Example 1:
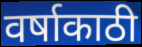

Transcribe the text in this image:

वर्षाकाठी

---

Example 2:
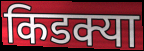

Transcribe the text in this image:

किडक्या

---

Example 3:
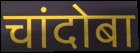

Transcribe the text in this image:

चांदोबा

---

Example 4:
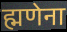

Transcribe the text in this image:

ह्मणेना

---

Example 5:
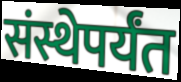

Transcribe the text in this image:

संस्थेपर्यंत